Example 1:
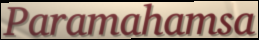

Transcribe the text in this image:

Paramahamsa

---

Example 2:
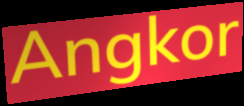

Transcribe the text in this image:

Angkor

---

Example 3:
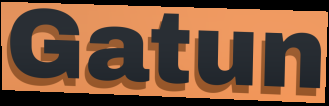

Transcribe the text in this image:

Gatun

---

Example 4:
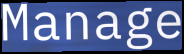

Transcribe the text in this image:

Manage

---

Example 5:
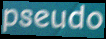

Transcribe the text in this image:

pseudo